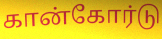
கான்கோர்டு